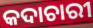
କଦାଚାରୀ